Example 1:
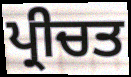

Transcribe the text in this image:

ਪ੍ਰੀਚਤ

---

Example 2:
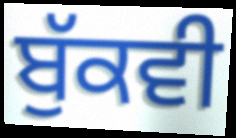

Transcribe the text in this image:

ਬੁੱਕਵੀ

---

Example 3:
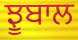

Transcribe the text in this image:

ਝੂਬਾਲ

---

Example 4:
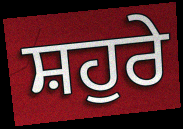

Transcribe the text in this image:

ਸ਼ਹੁਰੇ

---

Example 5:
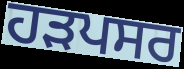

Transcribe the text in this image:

ਹੜਪਸਰ